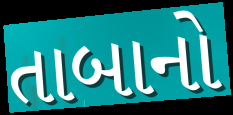
તાબાનો